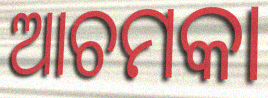
ଆଚମକା